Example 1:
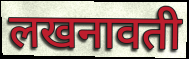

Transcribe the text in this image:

लखनावती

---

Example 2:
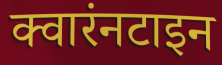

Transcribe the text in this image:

क्वारंनटाइन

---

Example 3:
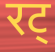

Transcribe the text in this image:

रट्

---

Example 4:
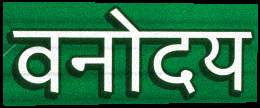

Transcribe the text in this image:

वनोदय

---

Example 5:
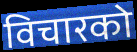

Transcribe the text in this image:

विचारको